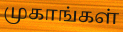
முகாங்கள்